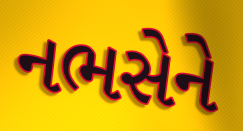
નભસેને